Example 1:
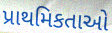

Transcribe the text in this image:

પ્રાથમિકતાઓ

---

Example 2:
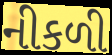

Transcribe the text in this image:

નીકળી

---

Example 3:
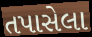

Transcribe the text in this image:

તપાસેલા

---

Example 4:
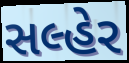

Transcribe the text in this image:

સલ્હેર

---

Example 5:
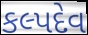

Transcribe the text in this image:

કલ્પદેવ